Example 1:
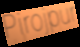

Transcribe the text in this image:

Pirojpur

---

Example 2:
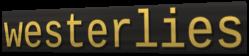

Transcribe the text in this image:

westerlies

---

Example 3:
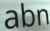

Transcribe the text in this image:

abn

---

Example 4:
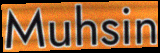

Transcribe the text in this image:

Muhsin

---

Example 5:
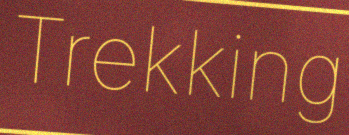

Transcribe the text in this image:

Trekking